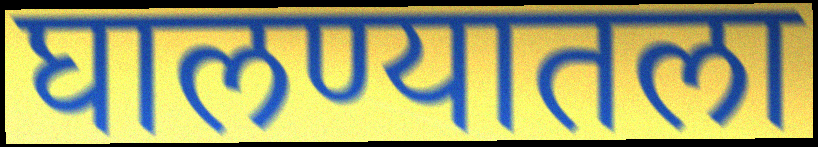
घालण्यातला